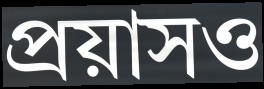
প্রয়াসও